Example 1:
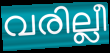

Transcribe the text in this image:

വരില്ലീ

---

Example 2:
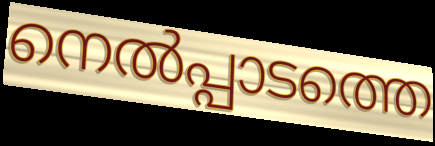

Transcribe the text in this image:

നെൽപ്പാടത്തെ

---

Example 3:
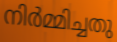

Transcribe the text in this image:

നിർമ്മിച്ചതു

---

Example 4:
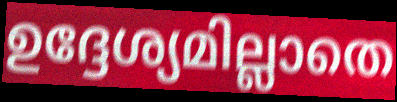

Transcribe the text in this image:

ഉദ്ദേശ്യമില്ലാതെ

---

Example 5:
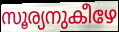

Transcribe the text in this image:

സൂര്യനുകീഴേ